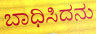
ಬಾಧಿಸಿದನು